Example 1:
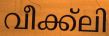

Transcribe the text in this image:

വീക്ക്ലി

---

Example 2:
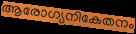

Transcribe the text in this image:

ആരോഗ്യനികേതനം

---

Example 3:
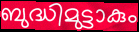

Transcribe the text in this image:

ബുദ്ധിമുട്ടാകും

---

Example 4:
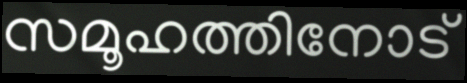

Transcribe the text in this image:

സമൂഹത്തിനോട്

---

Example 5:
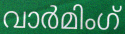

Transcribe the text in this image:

വാർമിംഗ്